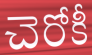
చెరోకీ